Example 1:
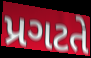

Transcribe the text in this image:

પ્રગટતે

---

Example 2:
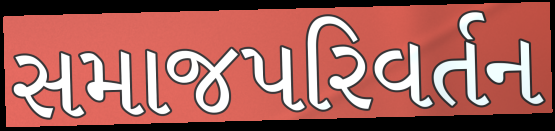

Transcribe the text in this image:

સમાજપરિવર્તન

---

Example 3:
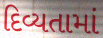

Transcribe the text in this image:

દિવ્યતામાં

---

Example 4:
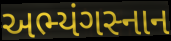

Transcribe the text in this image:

અભ્યંગસ્નાન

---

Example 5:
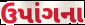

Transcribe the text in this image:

ઉપાંગના